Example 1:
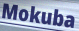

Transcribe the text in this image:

Mokuba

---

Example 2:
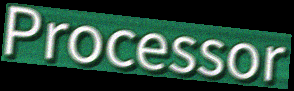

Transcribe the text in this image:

Processor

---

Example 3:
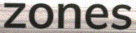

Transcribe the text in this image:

zones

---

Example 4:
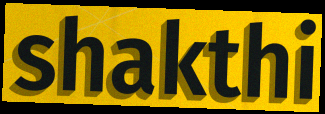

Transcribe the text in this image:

shakthi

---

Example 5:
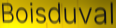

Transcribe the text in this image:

Boisduval